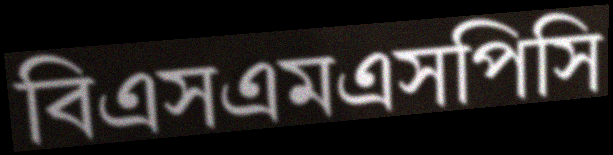
বিএসএমএসপিসি